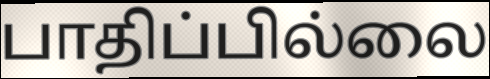
பாதிப்பில்லை